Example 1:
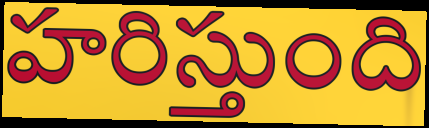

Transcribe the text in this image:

హరిస్తుంది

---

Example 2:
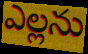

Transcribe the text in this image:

ఎల్లను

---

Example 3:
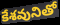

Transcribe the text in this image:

కేశవునితో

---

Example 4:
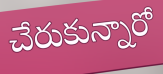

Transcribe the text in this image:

చేరుకున్నారో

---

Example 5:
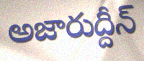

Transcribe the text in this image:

అజారుద్దీన్